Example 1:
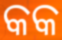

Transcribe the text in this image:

କକ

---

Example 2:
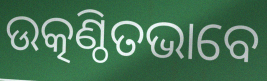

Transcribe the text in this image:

ଉତ୍କଣ୍ଠିତଭାବେ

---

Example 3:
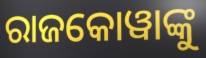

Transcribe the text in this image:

ରାଜକୋୱାଙ୍କୁ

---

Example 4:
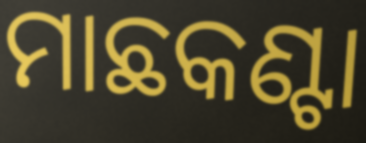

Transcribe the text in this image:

ମାଛକଣ୍ଟା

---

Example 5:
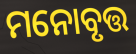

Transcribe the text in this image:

ମନୋବୃତ୍ତ